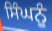
ਸਿੰਘਨੂੰ